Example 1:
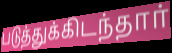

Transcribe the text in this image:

படுத்துக்கிடந்தார்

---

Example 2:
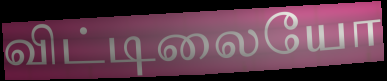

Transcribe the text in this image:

விட்டிலையோ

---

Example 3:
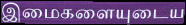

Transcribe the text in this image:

இமைகளையுடைய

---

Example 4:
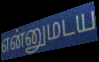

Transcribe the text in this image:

என்னுமடய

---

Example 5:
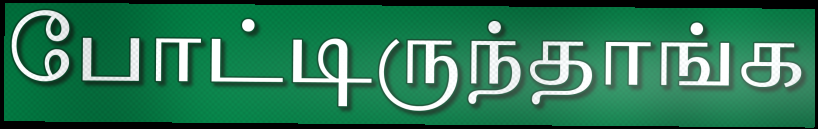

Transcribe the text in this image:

போட்டிருந்தாங்க